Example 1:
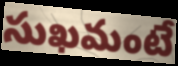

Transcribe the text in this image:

సుఖమంటే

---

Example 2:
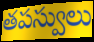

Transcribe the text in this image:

తపస్వులు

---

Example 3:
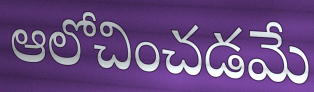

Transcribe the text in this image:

ఆలోచించడమే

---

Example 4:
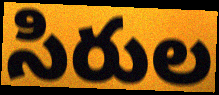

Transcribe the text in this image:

సిరుల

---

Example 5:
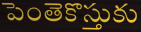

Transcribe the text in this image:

పెంతెకొస్తుకు